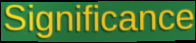
Significance